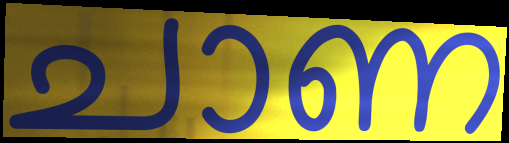
ചാണ